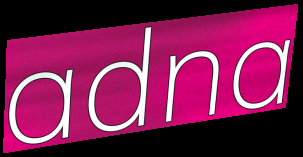
adna